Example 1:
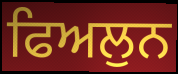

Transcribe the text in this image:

ਫਿਅਲੁਨ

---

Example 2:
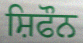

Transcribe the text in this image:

ਸ਼ਿਫੌਨ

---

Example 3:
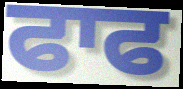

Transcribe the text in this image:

ਫਾਫ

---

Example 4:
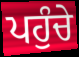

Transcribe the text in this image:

ਪਹੁੰਚੇ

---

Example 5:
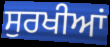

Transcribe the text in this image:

ਸੁਰਖੀਆਂ